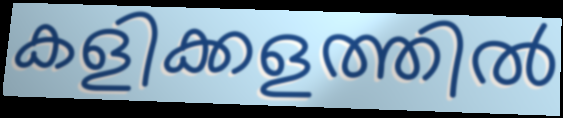
കളിക്കളത്തിൽ